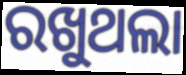
ରଖୁଥଲା